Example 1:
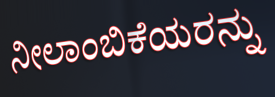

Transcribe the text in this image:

ನೀಲಾಂಬಿಕೆಯರನ್ನು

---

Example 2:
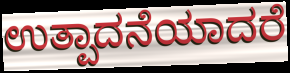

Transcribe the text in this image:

ಉತ್ಪಾದನೆಯಾದರೆ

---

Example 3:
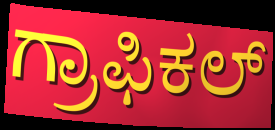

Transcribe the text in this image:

ಗ್ರಾಫಿಕಲ್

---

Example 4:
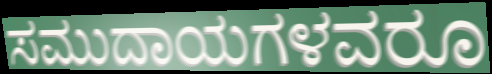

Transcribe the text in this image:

ಸಮುದಾಯಗಳವರೂ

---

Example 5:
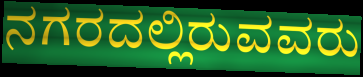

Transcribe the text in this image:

ನಗರದಲ್ಲಿರುವವರು